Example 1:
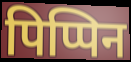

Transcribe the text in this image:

पिप्पिन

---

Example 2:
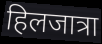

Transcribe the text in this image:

हिलजात्रा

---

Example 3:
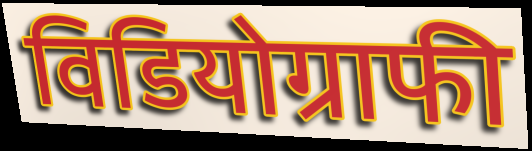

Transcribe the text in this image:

विडियोग्राफी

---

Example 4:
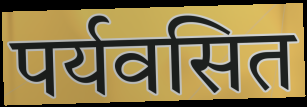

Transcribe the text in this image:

पर्यवसित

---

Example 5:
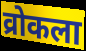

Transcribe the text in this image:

व्रोकला